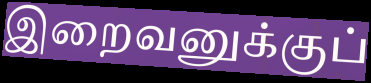
இறைவனுக்குப்